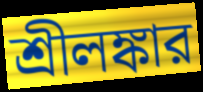
শ্রীলঙ্কার